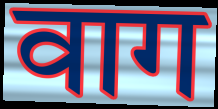
वाग